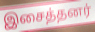
இசைத்தனர்